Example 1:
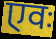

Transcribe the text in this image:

एवः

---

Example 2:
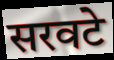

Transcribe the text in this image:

सरवटे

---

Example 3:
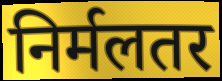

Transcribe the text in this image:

निर्मलतर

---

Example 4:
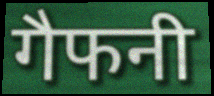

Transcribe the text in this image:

गैफनी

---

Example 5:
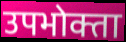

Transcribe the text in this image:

उपभोक्‍ता